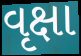
વૃક્ષા